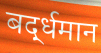
बर्द्धमान